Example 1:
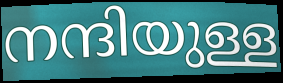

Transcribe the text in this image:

നന്ദിയുള്ള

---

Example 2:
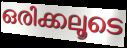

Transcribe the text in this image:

ഒരിക്കലൂടെ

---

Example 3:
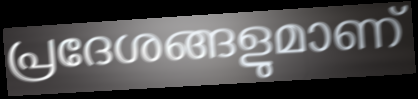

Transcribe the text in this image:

പ്രദേശങ്ങളുമാണ്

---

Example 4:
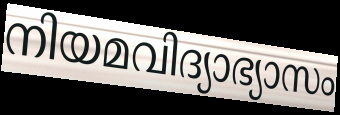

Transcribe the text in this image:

നിയമവിദ്യാഭ്യാസം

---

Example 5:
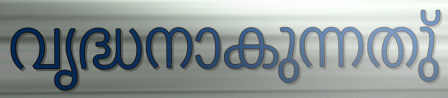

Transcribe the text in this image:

വൃദ്ധനാകുന്നതു്